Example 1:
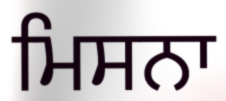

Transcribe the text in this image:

ਮਿਸਨਾ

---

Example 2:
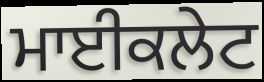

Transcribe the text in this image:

ਮਾਈਕਲੇਟ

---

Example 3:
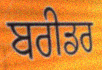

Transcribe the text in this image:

ਬਰੀਡਰ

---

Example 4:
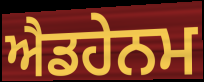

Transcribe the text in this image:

ਐਡਹੇਨਮ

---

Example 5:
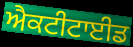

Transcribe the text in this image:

ਐਕਟੀਟਾਈਡ